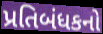
પ્રતિબંધકનો